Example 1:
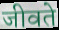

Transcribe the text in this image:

जीवते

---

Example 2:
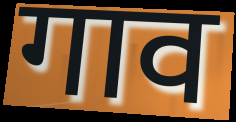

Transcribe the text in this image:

गाव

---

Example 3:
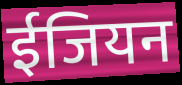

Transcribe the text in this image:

ईजियन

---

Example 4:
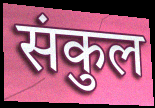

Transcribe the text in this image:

संकुल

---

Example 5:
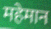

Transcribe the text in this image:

महेमान